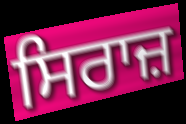
ਸਿਰਾਜ਼